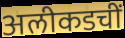
अलीकडचीं